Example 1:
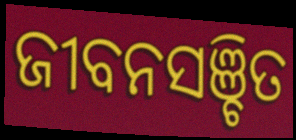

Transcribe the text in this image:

ଜୀବନସଞ୍ଚିତ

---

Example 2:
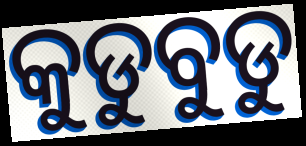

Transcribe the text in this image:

କୁଡୁବୁଡୁ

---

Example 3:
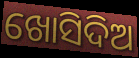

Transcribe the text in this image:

ଖୋସିଦିଅ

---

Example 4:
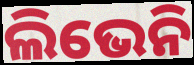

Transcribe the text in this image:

ଲିଭେନି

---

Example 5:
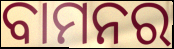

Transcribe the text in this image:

ବାମନର